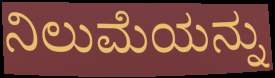
ನಿಲುಮೆಯನ್ನು